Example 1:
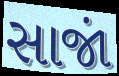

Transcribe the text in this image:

સાજાં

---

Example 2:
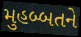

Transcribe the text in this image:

મુહબ્બતને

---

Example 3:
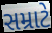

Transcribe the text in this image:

સમ્રાટે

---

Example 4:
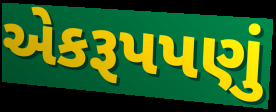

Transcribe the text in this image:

એકરૂપપણું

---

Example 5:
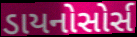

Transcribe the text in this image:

ડાયનોસોર્સ